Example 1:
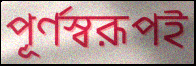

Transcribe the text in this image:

পূর্ণস্বরূপই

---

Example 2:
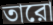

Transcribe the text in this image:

তারো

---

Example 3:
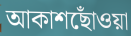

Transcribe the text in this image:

আকাশছোঁওয়া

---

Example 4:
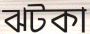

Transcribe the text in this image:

ঝটকা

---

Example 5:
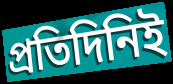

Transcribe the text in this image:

প্রতিদিনিই